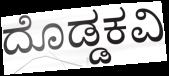
ದೊಡ್ಡಕವಿ